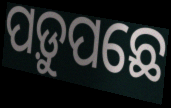
ପଡ଼ୁପଛେ